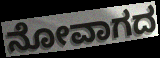
ನೋವಾಗದ